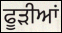
ਫੂੜੀਆਂ